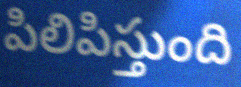
పిలిపిస్తుంది